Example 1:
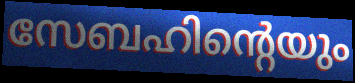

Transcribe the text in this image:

സേബഹിന്റെയും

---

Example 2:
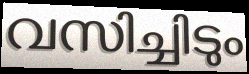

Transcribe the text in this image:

വസിച്ചിടും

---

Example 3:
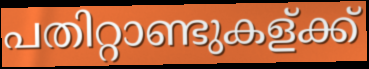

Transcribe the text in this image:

പതിറ്റാണ്ടുകള്ക്ക്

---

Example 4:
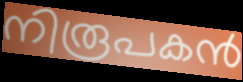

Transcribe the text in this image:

നിരൂപകൻ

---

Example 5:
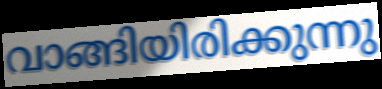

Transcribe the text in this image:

വാങ്ങിയിരിക്കുന്നു